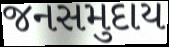
જનસમુદાય